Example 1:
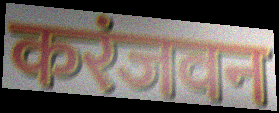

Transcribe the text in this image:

करंजवन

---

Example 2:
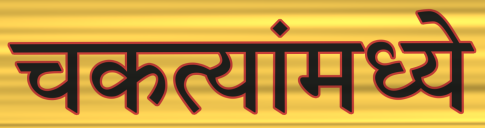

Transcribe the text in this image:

चकत्यांमध्ये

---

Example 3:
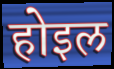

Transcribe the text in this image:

होइल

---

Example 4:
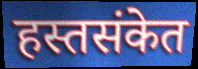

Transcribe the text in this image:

हस्तसंकेत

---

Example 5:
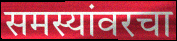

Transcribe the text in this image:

समस्यांवरचा